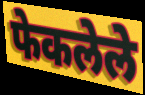
फेकलेले